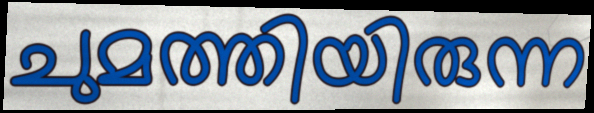
ചുമത്തിയിരുന്ന